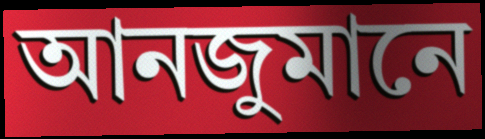
আনজুমানে